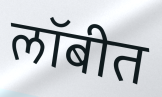
लॉबीत